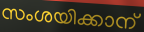
സംശയിക്കാന്